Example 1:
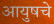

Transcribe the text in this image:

आयुषचे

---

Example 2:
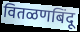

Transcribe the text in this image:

वितळणबिंदू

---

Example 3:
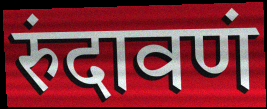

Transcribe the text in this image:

रुंदावणं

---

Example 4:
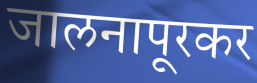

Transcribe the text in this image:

जालनापूरकर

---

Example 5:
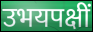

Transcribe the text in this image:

उभयपक्षीं